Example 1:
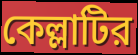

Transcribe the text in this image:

কেল্লাটির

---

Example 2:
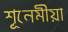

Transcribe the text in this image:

শূনেমীয়া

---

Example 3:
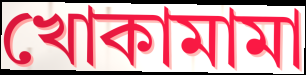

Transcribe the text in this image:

খোকামামা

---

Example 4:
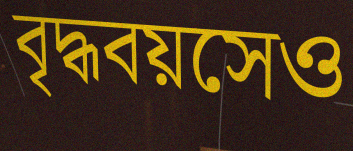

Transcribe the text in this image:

বৃদ্ধবয়সেও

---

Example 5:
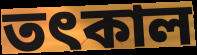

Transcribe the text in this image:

তৎকাল